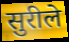
सुरीले